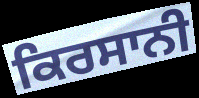
ਕਿਰਸਾਨੀ